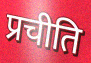
प्रचीति